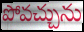
పోవచ్చును